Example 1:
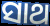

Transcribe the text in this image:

ସାଥ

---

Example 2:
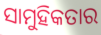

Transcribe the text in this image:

ସାମୁହିକତାର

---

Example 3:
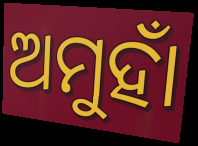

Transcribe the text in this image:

ଅମୁହାଁ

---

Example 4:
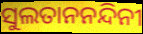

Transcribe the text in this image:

ସୁଲତାନନନ୍ଦିନୀ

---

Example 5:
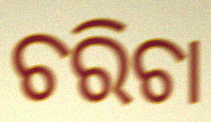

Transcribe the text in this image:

ଚରିଚା